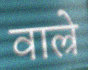
वाल्रे